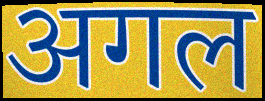
अगल